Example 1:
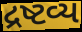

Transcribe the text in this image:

દ્રષ્ટવ્ય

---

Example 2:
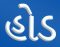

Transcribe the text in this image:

હોડ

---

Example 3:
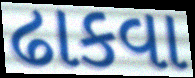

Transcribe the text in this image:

ઢાકવા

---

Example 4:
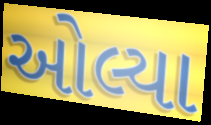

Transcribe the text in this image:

ઓલ્યા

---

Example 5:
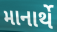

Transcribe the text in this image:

માનાર્થે